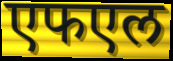
एफएल